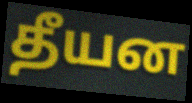
தீயன